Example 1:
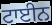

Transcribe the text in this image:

ਟਾਈਨ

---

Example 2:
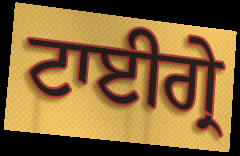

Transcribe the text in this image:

ਟਾਈਗ੍ਰੇ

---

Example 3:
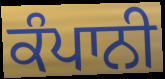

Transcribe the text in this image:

ਕੰਪਾਨੀ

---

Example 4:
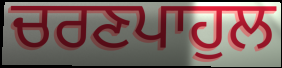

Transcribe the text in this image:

ਚਰਣਪਾਹੁਲ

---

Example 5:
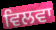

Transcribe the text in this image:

ਵਿਲਵਾ